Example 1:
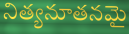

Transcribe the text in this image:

నిత్యనూతనమై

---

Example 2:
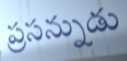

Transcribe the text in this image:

ప్రసన్నుడు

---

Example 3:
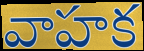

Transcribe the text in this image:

వాహక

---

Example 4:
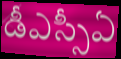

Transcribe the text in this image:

డీఎస్సీఏ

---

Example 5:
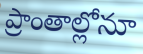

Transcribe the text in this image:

ప్రాంతాల్లోనూ